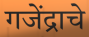
गजेंद्राचे